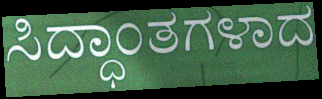
ಸಿದ್ಧಾಂತಗಳಾದ